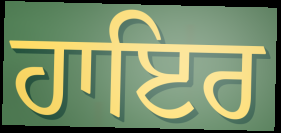
ਹਾਇਰ